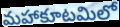
మహాకూటమిలో